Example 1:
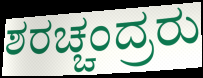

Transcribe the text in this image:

ಶರಚ್ಚಂದ್ರರು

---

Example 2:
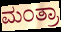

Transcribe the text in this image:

ಮಂತ್ರಾ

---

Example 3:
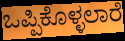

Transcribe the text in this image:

ಒಪ್ಪಿಕೊಳ್ಳಲಾರೆ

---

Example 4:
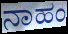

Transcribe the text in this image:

ನಾಹಂ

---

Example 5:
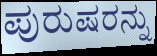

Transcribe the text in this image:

ಪುರುಷರನ್ನು